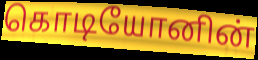
கொடியோனின்